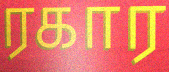
ரகார